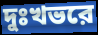
দুঃখভরে